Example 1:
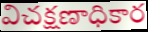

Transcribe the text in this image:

విచక్షణాధికార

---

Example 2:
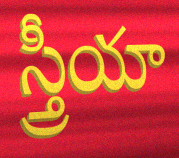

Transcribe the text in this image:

స్త్రీయా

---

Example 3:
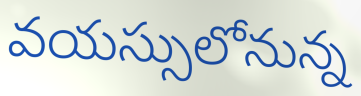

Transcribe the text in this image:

వయస్సులోనున్న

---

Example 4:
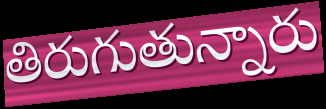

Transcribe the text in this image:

తిరుగుతున్నారు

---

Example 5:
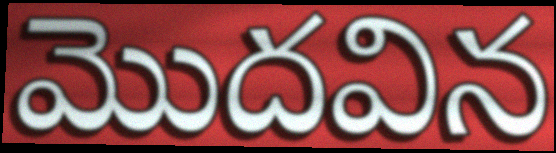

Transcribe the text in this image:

మొదవిన